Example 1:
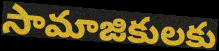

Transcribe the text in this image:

సామాజికులకు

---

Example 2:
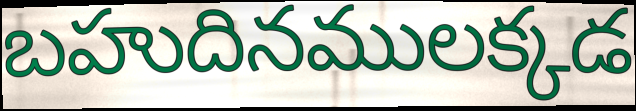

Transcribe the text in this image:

బహుదినములక్కడ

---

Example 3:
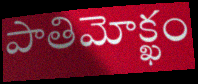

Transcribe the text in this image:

పాతిమోక్ఖం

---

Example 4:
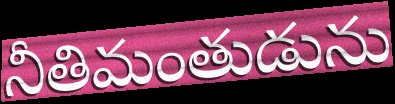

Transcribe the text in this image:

నీతిమంతుడును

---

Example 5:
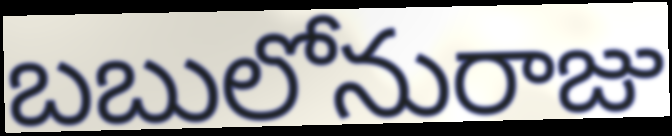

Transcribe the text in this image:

బబులోనురాజు